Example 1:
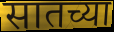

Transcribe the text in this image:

सातच्या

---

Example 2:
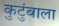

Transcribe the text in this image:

कुटुंबाला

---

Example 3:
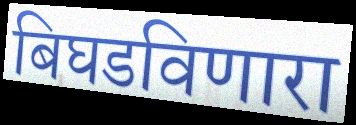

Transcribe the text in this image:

बिघडविणारा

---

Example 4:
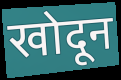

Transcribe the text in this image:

खोदून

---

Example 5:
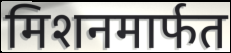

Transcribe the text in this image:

मिशनमार्फत